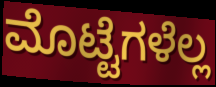
ಮೊಟ್ಟೆಗಳೆಲ್ಲ